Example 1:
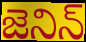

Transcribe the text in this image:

జెనిన్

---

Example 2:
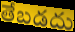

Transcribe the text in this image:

తేబడదు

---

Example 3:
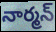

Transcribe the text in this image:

నార్మన్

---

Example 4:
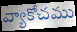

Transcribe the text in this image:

వ్యాకోచము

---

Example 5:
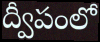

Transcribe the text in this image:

ద్వీపంలో